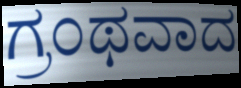
ಗ್ರಂಥವಾದ